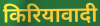
किरियावादी